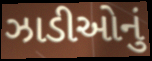
ઝાડીઓનું